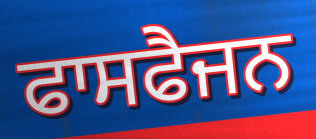
ਫਾਸਫੈਜਨ